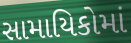
સામાયિકોમાં